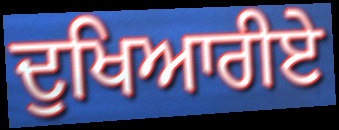
ਦੁਖਿਆਰੀਏ